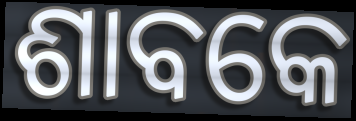
ଶାବକେ